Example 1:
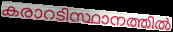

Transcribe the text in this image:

കരാറടിസ്ഥാനത്തിൽ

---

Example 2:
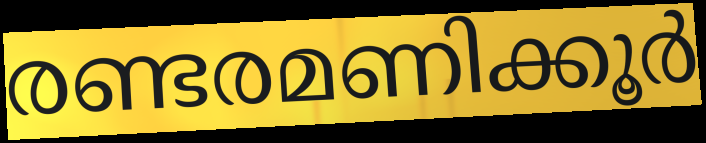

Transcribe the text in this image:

രണ്ടരമണിക്കൂർ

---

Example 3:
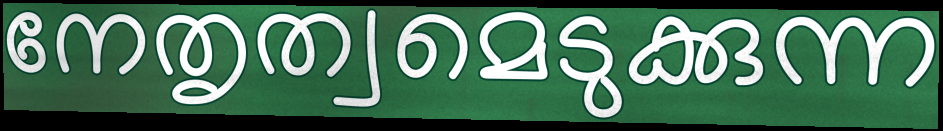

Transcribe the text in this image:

നേതൃത്വമെടുക്കുന്ന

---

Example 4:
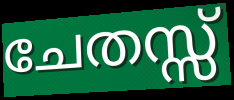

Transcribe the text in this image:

ചേതസ്സ്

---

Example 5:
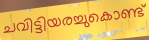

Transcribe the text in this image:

ചവിട്ടിയരച്ചുകൊണ്ട്